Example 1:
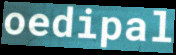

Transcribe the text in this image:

oedipal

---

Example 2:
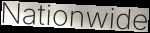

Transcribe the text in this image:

Nationwide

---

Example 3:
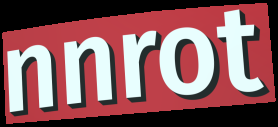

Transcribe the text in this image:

nnrot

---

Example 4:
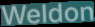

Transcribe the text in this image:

Weldon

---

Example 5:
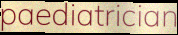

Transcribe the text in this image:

paediatrician